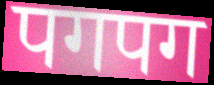
पगपग